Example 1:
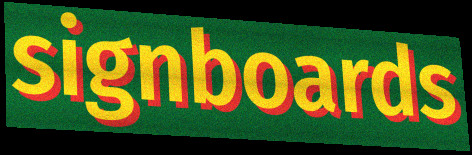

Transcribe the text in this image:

signboards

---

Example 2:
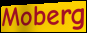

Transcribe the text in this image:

Moberg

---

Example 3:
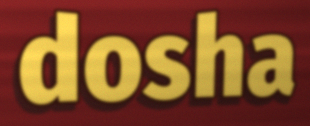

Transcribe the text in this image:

dosha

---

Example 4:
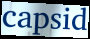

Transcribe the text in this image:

capsid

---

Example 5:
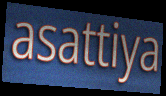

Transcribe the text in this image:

asattiya